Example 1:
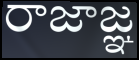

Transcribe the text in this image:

రాజాజ్ఞ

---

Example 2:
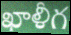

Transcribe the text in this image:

ఖాళీగ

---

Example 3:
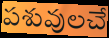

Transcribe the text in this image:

పశువులచే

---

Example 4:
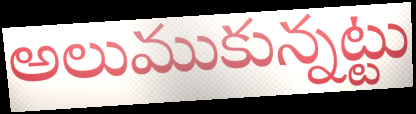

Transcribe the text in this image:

అలుముకున్నట్టు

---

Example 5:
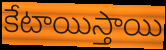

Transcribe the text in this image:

కేటాయిస్తాయి